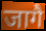
जागै